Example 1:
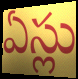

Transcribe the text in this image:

ఏస్లు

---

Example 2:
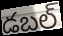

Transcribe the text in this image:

డబల్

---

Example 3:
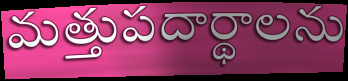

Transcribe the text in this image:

మత్తుపదార్థాలను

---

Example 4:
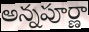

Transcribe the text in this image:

అన్నపూర్ణా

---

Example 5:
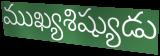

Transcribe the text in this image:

ముఖ్యశిష్యుడు